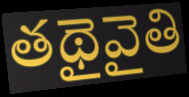
తథైవైతి